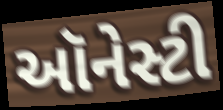
ઑનેસ્ટી